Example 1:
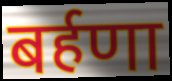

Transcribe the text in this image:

बर्हणा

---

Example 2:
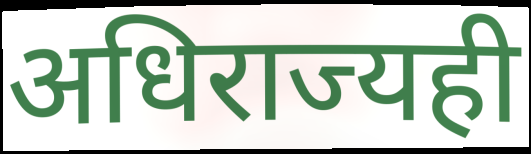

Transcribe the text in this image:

अधिराज्यही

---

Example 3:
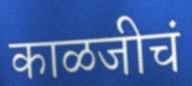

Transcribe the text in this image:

काळजीचं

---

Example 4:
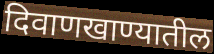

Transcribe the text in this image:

दिवाणखाण्यातील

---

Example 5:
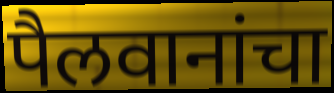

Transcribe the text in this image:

पैलवानांचा